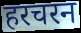
हरचरन